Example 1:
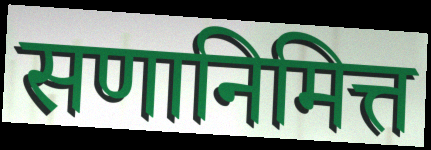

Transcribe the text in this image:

सणानिमित्त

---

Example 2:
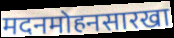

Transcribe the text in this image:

मदनमोहनसारखा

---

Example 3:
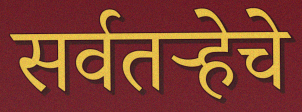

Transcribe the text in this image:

सर्वतऱ्हेचे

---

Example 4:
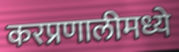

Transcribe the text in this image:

करप्रणालीमध्ये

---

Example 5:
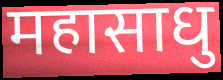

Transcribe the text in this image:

महासाधु